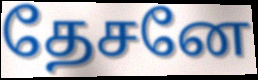
தேசனே